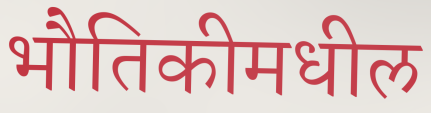
भौतिकीमधील